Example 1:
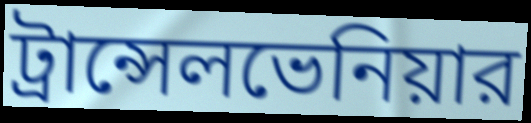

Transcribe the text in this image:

ট্রান্সেলভেনিয়ার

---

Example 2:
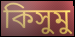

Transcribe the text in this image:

কিসুমু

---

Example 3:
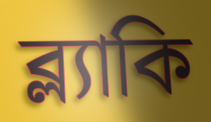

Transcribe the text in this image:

ব্ল্যাকি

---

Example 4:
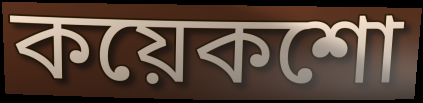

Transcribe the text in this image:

কয়েকশো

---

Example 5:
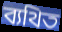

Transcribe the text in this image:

ব্যথিত